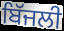
ਬਿੱਜਲੀ